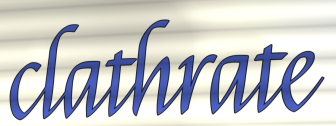
clathrate